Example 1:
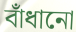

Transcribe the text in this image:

বাঁধানো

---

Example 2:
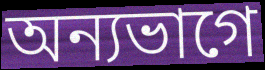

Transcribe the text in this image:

অন্যভাগে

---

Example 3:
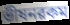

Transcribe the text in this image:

ভীষনরকম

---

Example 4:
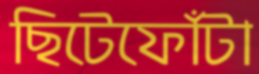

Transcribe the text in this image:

ছিটেফোঁটা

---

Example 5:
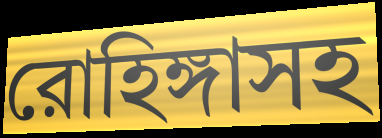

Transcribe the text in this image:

রোহিঙ্গাসহ